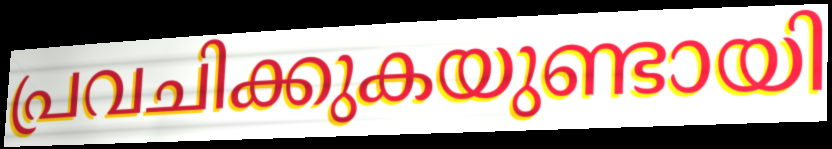
പ്രവചിക്കുകയുണ്ടായി